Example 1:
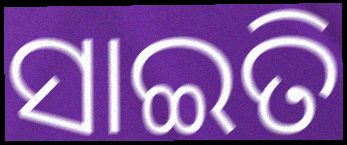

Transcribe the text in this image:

ସାଇତି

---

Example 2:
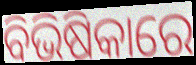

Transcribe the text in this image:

ବିଭିଷିକାରେ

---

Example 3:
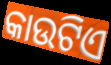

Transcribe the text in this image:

କାଉଟିଏ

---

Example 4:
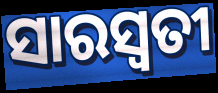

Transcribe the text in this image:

ସାରସ୍ୱତୀ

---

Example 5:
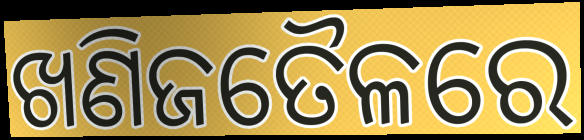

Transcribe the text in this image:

ଖଣିଜତୈଳରେ